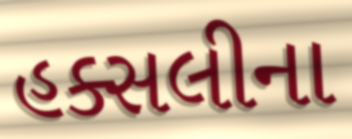
હક્સલીના